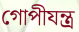
গোপীযন্ত্র